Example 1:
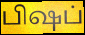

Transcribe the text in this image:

பிஷப்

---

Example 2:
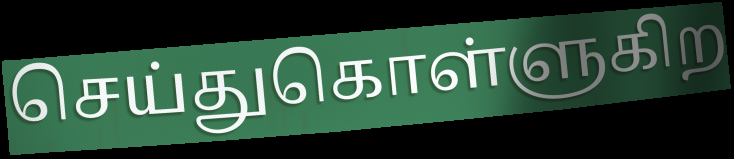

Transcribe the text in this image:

செய்துகொள்ளுகிற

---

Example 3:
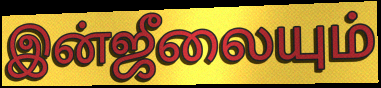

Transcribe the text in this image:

இன்ஜீலையும்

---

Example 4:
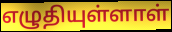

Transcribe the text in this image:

எழுதியுள்ளாள்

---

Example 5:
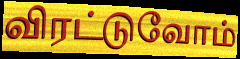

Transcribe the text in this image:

விரட்டுவோம்